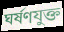
ঘর্ষণযুক্ত